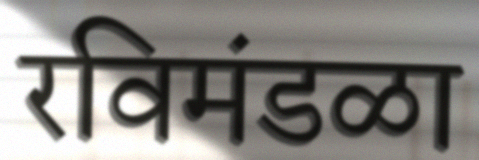
रविमंडळा